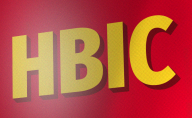
HBIC